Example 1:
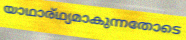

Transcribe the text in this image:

യാഥാര്ഥ്യമാകുന്നതോടെ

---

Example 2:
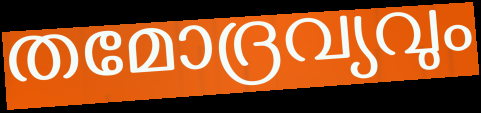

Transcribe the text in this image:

തമോദ്രവ്യവും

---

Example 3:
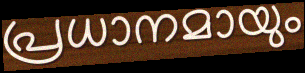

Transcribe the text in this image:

പ്രധാനമായും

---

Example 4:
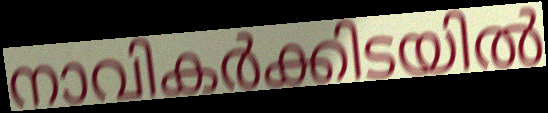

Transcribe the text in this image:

നാവികർക്കിടയിൽ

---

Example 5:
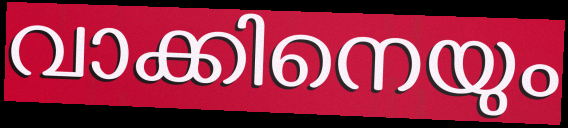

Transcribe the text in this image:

വാക്കിനെയും